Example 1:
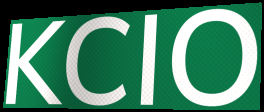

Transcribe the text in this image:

KCIO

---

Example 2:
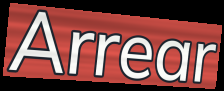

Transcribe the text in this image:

Arrear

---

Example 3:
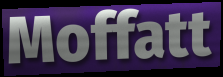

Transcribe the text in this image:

Moffatt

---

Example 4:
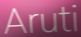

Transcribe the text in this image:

Aruti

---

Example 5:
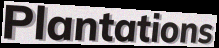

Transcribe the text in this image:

Plantations